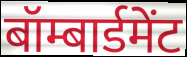
बॉम्बार्डमेंट